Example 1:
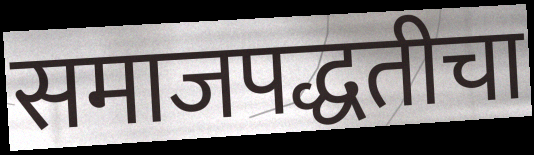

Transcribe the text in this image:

समाजपद्धतीचा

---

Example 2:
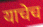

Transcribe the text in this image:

याचेच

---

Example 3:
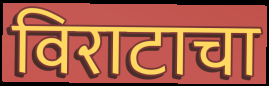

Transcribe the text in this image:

विराटाचा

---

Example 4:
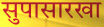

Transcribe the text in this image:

सुपासारखा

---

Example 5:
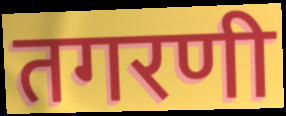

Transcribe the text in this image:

तगरणी